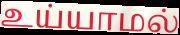
உய்யாமல்